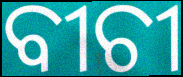
ବୀଚୀ